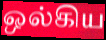
ஒல்கிய